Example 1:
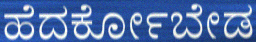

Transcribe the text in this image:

ಹೆದರ್ಕೋಬೇಡ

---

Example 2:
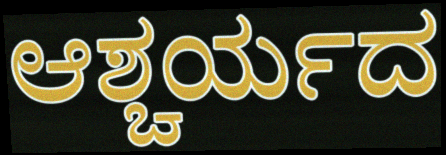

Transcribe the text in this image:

ಆಶ್ಚರ್ಯದ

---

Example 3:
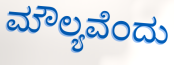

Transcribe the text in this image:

ಮೌಲ್ಯವೆಂದು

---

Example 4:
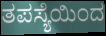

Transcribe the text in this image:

ತಪಸ್ಯೆಯಿಂದ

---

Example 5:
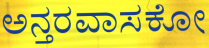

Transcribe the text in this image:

ಅನ್ತರವಾಸಕೋ